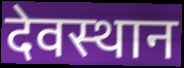
देवस्थान